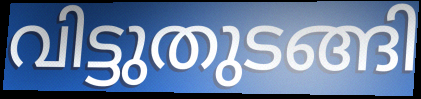
വിട്ടുതുടങ്ങി